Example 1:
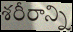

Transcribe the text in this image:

శరీరాన్ని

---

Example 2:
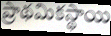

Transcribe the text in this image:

ప్రాథమికస్థాయి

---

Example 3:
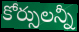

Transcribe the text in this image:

కోర్సులన్నీ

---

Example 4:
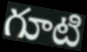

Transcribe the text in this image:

గూటి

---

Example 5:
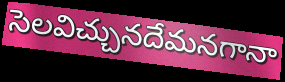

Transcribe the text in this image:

సెలవిచ్చునదేమనగానా